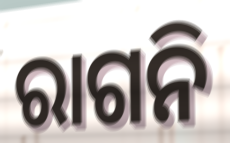
ରାଗନି